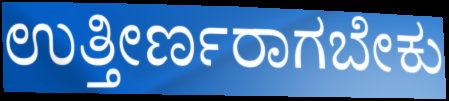
ಉತ್ತೀರ್ಣರಾಗಬೇಕು